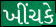
ખીંચકે